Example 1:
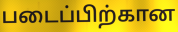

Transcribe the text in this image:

படைப்பிற்கான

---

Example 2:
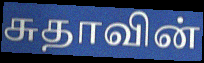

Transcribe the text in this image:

சுதாவின்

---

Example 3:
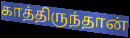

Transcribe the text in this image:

காத்திருந்தான்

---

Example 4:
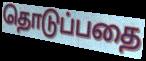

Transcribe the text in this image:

தொடுப்பதை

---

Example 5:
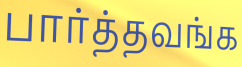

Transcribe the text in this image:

பார்த்தவங்க